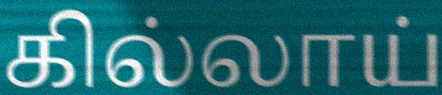
கில்லாய்